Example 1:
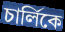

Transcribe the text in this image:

চার্লিকে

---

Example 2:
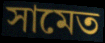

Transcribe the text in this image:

সামেত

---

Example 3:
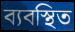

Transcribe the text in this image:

ব্যবস্থিত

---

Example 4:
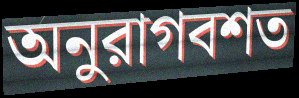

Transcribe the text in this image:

অনুরাগবশত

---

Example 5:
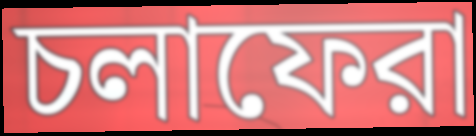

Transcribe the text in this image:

চলাফেরা